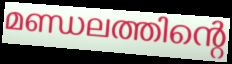
മണ്ഡലത്തിന്റെ